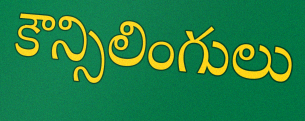
కౌన్సిలింగులు